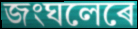
জংঘলেৰে